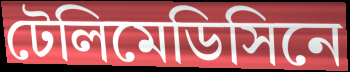
টেলিমেডিসিনে